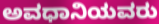
ಅವಧಾನಿಯವರು